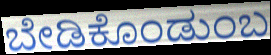
ಬೇಡಿಕೊಂಡುಂಬ